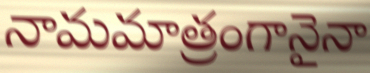
నామమాత్రంగానైనా